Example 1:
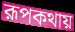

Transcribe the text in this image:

রূপকথায়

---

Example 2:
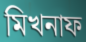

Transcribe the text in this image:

মিখনাফ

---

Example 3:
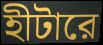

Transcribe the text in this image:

হীটারে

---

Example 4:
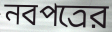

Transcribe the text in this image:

নবপত্রের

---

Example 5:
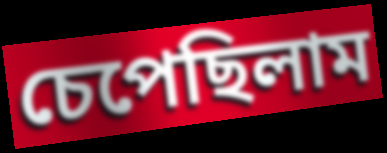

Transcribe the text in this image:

চেপেছিলাম